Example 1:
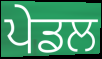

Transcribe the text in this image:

ਪੇਡਲ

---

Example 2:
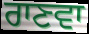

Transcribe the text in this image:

ਰਾਣਵਾ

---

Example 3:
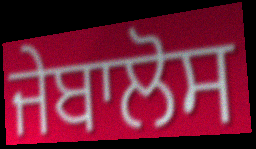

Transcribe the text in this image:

ਜੇਬਾਲੋਸ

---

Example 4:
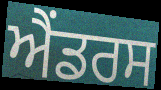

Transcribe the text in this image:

ਐਂਡਰਸ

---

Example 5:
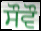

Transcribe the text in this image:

ਸੌਵੌ